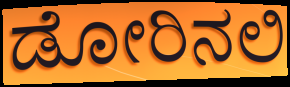
ಡೋರಿನಲಿ